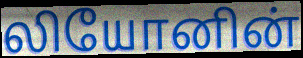
லியோனின்